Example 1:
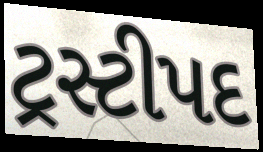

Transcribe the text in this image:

ટ્રસ્ટીપદ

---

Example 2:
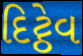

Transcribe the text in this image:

દિટ્ઠેવ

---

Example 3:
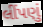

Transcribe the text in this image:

લીંપણું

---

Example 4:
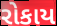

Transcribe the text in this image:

રોકાય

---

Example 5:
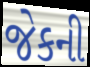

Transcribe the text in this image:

જેકની